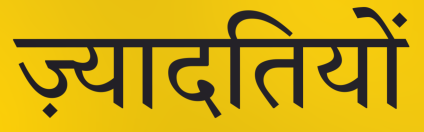
ज़्यादतियों